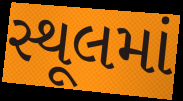
સ્થૂલમાં